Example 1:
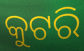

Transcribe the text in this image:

କୁଟରି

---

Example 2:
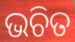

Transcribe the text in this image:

ଭଚିତ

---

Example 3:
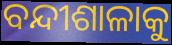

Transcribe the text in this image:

ବନ୍ଦୀଶାଳାକୁ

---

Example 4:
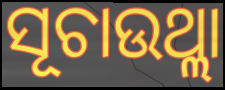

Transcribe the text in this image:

ସୂଚାଉଥ୍ଲା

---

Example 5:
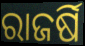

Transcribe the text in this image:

ରାଜର୍ଷି